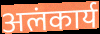
अलंकार्य